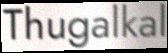
Thugalkal